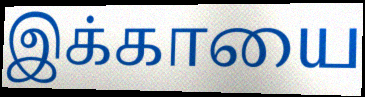
இக்காயை